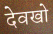
देवखो